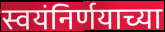
स्वयंनिर्णयाच्या